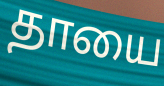
தாயை